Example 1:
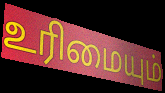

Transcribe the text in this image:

உரிமையும்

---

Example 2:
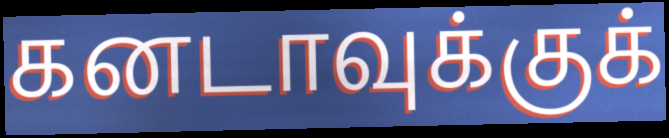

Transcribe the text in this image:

கனடாவுக்குக்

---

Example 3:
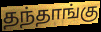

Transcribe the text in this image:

தந்தாங்கு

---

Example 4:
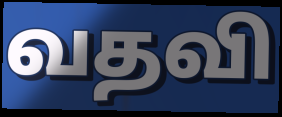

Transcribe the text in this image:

வதவி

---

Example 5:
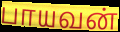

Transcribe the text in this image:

பாயவன்